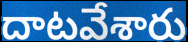
దాటవేశారు